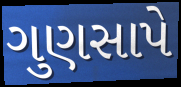
ગુણસાપે